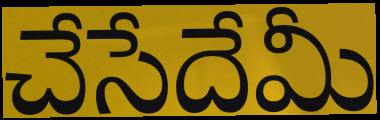
చేసేదేమీ